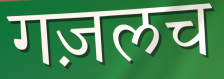
गज़लच